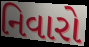
નિવારો